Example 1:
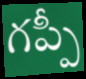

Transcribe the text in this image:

గప్పీ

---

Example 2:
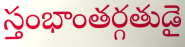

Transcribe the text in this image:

స్తంభాంతర్గతుడై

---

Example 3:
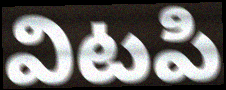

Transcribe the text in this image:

విటపి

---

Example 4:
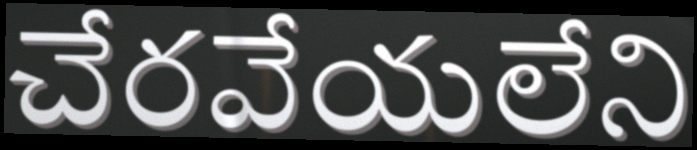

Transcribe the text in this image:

చేరవేయలేని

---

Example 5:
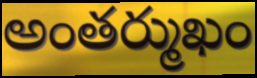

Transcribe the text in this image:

అంతర్ముఖం